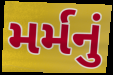
મર્મનું